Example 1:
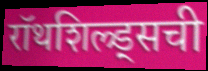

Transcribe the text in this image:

रॉथशिल्ड्सची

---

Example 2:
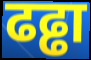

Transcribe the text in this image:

ढढ्ढा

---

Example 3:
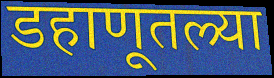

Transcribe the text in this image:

डहाणूतल्या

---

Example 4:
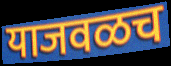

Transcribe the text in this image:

याजवळच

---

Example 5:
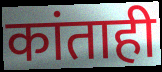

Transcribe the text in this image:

कांताही